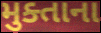
મુક્તાના